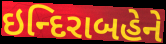
ઇન્દિરાબહેને